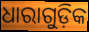
ଧାରାଗୁଡ଼ିକ